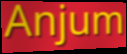
Anjum